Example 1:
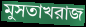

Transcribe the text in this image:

মুসতাখরাজ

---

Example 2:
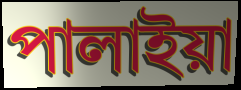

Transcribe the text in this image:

পালাইয়া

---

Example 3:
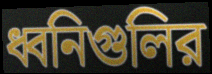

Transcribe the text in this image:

ধ্বনিগুলির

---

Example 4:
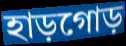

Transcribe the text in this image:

হাড়গোড়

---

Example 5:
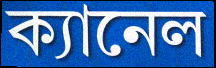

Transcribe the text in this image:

ক্যানেল